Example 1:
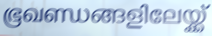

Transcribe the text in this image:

ഭൂഖണ്ഡങ്ങളിലേയ്ക്ക്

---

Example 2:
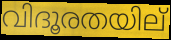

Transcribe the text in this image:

വിദൂരതയില്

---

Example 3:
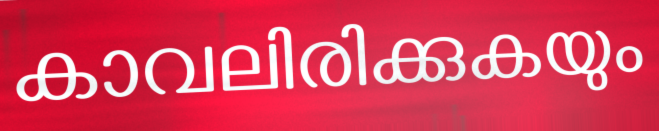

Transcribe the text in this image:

കാവലിരിക്കുകയും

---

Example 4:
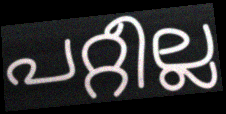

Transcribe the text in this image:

പറ്റീല്ല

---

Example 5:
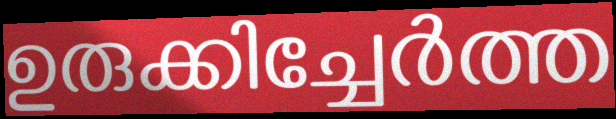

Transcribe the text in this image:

ഉരുക്കിച്ചേർത്ത